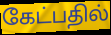
கேட்பதில்